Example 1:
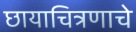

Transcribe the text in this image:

छायाचित्रणाचे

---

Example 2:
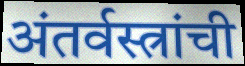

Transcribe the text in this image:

अंतर्वस्त्रांची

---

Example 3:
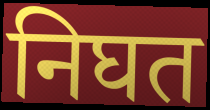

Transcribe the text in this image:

निघत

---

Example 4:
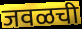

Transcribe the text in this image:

जवळची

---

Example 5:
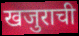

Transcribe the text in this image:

खजुराची